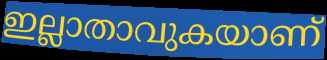
ഇല്ലാതാവുകയാണ്